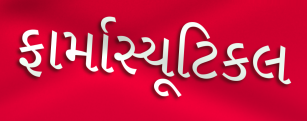
ફાર્માસ્યૂટિકલ